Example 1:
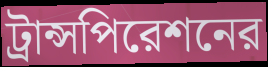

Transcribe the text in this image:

ট্রান্সপিরেশনের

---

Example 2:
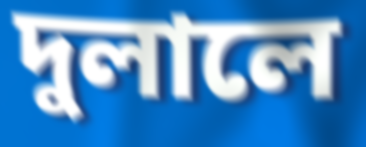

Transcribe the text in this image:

দুলালে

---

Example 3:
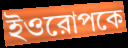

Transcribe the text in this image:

ইওরোপকে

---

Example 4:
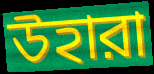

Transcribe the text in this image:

উহারা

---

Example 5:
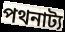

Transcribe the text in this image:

পথনাট্য